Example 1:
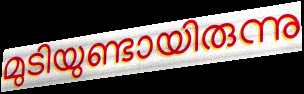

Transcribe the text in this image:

മുടിയുണ്ടായിരുന്നു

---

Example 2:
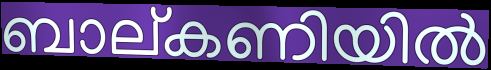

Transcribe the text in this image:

ബാല്കണിയിൽ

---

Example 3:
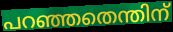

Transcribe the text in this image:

പറഞ്ഞതെന്തിന്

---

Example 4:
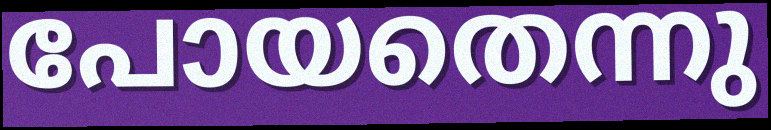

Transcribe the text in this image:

പോയതെന്നു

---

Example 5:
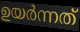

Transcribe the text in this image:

ഉയർന്നത്